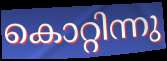
കൊറ്റിന്നു